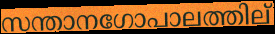
സന്താനഗോപാലത്തില്